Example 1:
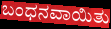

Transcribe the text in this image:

ಬಂಧನವಾಯಿತು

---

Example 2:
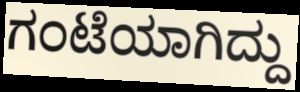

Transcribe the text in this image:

ಗಂಟೆಯಾಗಿದ್ದು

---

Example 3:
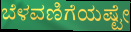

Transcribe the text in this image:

ಬೆಳವಣಿಗೆಯಷ್ಟೇ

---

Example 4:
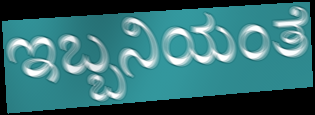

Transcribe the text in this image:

ಇಬ್ಬನಿಯಂತೆ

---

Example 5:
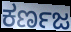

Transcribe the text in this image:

ಕರ್ಣಜ